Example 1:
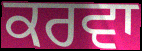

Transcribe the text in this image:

ਕਰਵਾ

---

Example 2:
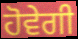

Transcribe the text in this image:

ਹੋਵੇਗੀ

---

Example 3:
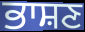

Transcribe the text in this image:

ਭਾਸ਼ਣ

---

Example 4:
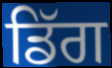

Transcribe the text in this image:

ਡਿੱਗ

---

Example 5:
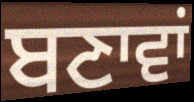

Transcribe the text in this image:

ਬਣਾਵਾਂ